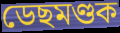
ডেছমণ্ডক